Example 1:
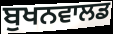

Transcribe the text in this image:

ਬੁਖਨਵਾਲਡ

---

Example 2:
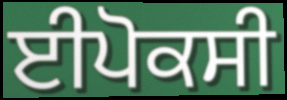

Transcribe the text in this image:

ਈਪੋਕਸੀ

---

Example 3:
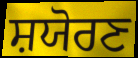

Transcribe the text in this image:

ਸ਼ਯੋਰਣ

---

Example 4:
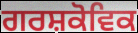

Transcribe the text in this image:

ਗਰਸ਼ਕੋਵਿਕ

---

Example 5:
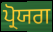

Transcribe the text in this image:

ਪ੍ਰੋਯਗ